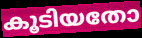
കൂടിയതോ